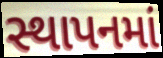
સ્થાપનમાં